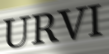
URVI